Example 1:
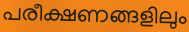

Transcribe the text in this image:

പരീക്ഷണങ്ങളിലും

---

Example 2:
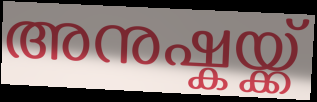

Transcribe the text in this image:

അനുഷ്കയ്ക്ക്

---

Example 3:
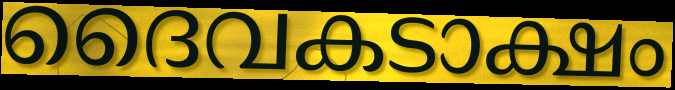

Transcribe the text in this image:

ദൈവകടാക്ഷം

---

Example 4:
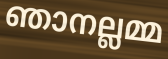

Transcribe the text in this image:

ഞാനല്ലമ്മ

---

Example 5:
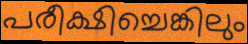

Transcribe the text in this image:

പരീക്ഷിച്ചെങ്കിലും